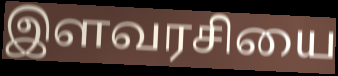
இளவரசியை